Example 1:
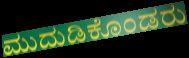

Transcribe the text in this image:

ಮುದುಡಿಕೊಂಡರು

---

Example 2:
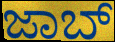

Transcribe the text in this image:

ಜಾಬ್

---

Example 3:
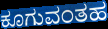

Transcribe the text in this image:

ಕೂಗುವಂತಹ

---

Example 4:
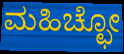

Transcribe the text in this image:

ಮಹಿಚ್ಛೋ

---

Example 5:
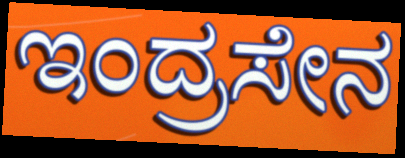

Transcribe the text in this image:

ಇಂದ್ರಸೇನ